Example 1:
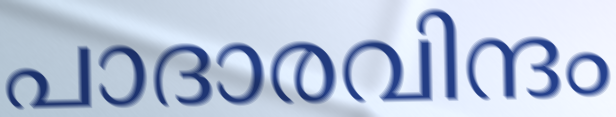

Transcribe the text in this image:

പാദാരവിന്ദം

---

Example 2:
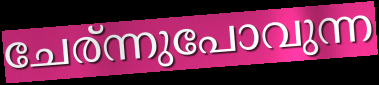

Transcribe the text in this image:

ചേര്ന്നുപോവുന്ന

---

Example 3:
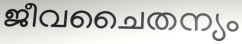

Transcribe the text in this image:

ജീവചൈതന്യം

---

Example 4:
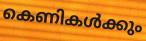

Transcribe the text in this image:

കെണികൾക്കും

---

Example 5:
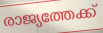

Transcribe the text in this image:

രാജ്യത്തേക്ക്